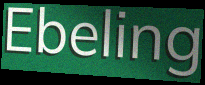
Ebeling